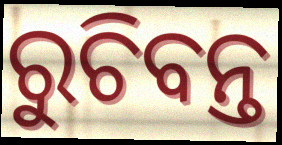
ରୁଚିବନ୍ତ